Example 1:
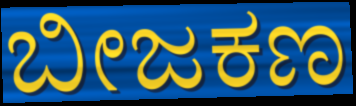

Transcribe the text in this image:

ಬೀಜಕಣ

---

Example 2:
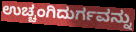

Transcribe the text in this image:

ಉಚ್ಚಂಗಿದುರ್ಗವನ್ನು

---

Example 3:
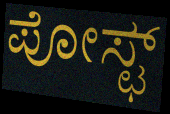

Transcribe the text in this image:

ಪೋಸ್ಟ್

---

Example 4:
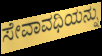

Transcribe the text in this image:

ಸೇವಾವಧಿಯನ್ನು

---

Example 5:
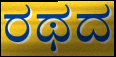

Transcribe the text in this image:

ರಥದ